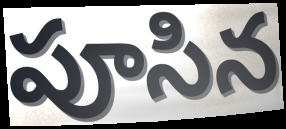
పూసిన